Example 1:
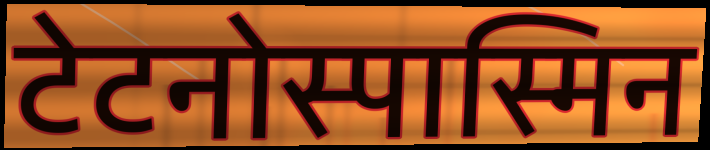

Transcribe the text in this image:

टेटनोस्पास्मिन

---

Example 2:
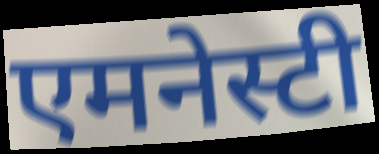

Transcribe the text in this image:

एमनेस्टी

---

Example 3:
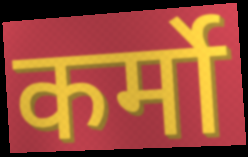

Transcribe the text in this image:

कर्मो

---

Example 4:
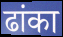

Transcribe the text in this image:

ढांका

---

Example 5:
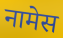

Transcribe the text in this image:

नामेस